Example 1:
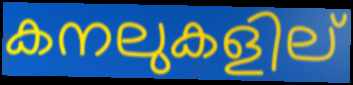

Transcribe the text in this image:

കനലുകളില്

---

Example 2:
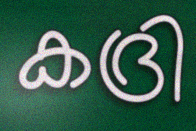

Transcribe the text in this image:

കദ്രി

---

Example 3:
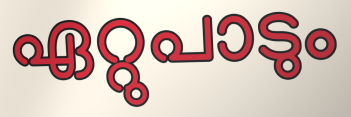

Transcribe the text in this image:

ഏറ്റുപാടും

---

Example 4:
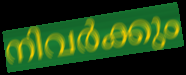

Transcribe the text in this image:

നിവർക്കും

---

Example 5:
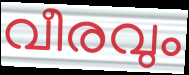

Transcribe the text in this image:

വീരവും